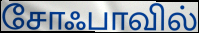
சோஃபாவில்